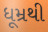
ધૂમ્રથી